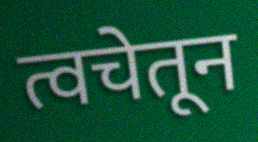
त्वचेतून